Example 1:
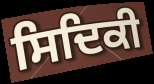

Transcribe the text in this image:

ਸਿਦਿਕੀ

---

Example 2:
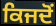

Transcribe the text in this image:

ਕਿਜਦੋਂ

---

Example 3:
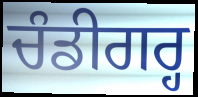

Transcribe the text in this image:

ਚੰਡੀਗਰ੍ਹ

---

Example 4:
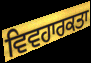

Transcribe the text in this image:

ਵਿਵਹਾਰਕਤਾ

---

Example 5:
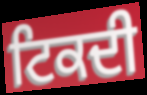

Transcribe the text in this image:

ਟਿਕਦੀ